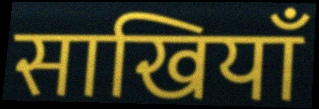
साखियाँ